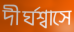
দীর্ঘশ্বাসে